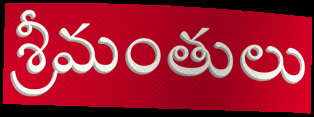
శ్రీమంతులు